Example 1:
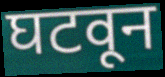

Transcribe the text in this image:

घटवून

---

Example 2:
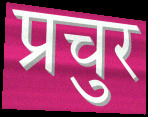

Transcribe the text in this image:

प्रचुर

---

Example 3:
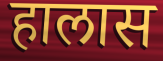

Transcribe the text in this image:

हालास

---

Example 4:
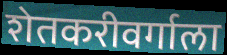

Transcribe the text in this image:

शेतकरीवर्गाला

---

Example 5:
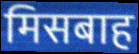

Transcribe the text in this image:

मिसबाह